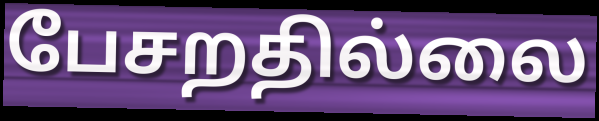
பேசறதில்லை